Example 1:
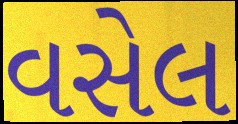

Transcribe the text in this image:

વસેલ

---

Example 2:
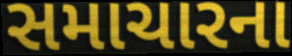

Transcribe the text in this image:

સમાચારના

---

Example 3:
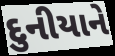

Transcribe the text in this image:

દુનીયાને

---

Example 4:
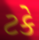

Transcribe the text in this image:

ટકે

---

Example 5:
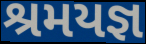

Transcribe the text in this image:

શ્રમયજ્ઞ